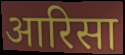
आरिसा